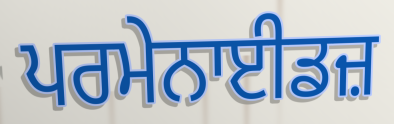
ਪਰਮੇਨਾਈਡਜ਼